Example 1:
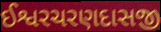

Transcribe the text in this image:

ઈશ્વરચરણદાસજી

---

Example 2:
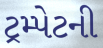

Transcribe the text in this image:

ટ્રમ્પેટની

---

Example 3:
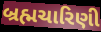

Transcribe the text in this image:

બ્રહ્મચારિણી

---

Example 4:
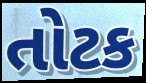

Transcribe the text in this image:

તોટક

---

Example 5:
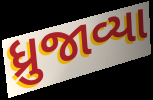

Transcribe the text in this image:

ધ્રુજાવ્યા